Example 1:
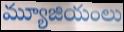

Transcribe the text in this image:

మ్యూజియంలు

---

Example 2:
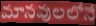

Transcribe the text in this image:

మానవులలోనే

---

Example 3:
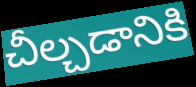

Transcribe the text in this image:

చీల్చడానికి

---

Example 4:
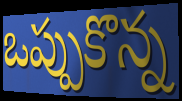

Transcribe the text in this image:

ఒప్పుకొన్న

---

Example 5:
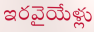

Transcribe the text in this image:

ఇరవైయేళ్లు